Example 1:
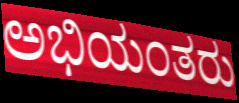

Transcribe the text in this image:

ಅಭಿಯಂತರು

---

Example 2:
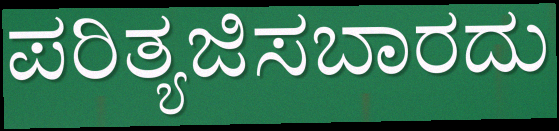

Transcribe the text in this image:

ಪರಿತ್ಯಜಿಸಬಾರದು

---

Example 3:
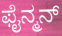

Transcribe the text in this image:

ಫೈನ್ಮನ್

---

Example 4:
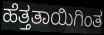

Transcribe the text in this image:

ಹೆತ್ತತಾಯಿಗಿಂತ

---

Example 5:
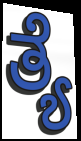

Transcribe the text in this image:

ತ್ಯೆ